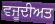
ਵਜੂਦੀਅਤ